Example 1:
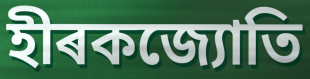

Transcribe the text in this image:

হীৰকজ্যোতি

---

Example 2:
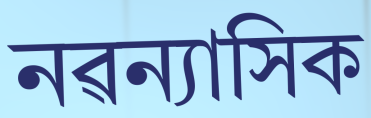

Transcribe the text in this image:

নৱন্যাসিক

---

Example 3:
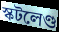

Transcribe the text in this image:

স্কটলেণ্ড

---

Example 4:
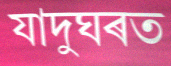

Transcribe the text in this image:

যাদুঘৰত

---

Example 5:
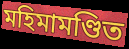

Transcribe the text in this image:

মহিমামণ্ডিত